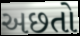
અછતો